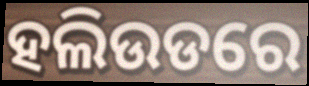
ହଲିଉଡରେ